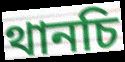
থানচি